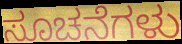
ಸೂಚನೆಗಳು